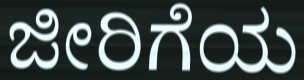
ಜೀರಿಗೆಯ